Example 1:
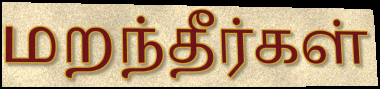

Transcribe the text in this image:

மறந்தீர்கள்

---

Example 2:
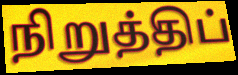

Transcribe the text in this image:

நிறுத்திப்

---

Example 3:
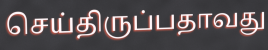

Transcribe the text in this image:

செய்திருப்பதாவது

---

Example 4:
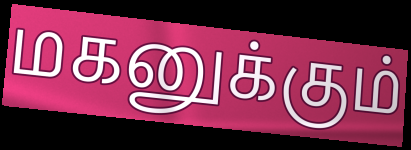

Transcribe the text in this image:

மகனுக்கும்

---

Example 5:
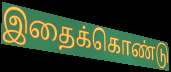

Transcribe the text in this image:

இதைக்கொண்டு